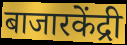
बाजारकेंद्री